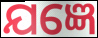
ଯଜ୍ଞେ